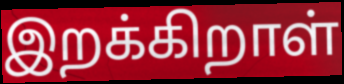
இறக்கிறாள்